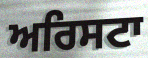
ਅਰਿਸਟਾ